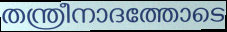
തന്ത്രീനാദത്തോടെ